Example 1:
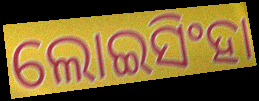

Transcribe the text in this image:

ଲୋଇସିଂହା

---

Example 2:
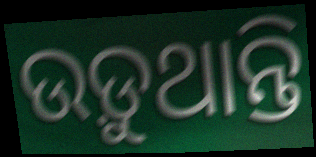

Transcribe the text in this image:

ଉଡ଼ୁଥାନ୍ତି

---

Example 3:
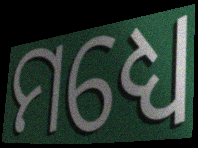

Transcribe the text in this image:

ମଧ୍ୟେ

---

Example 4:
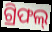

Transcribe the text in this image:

ଗ୍ରିଫଲ୍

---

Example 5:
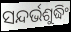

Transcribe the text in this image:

ସନ୍ଦର୍ଭଶୁଦ୍ଧିଂ